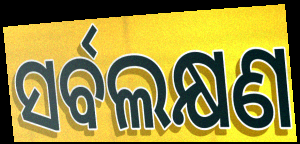
ସର୍ବଲକ୍ଷଣ